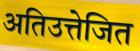
अतिउत्तेजित